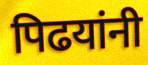
पिढयांनी